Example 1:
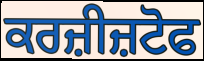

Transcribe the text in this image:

ਕਰਜ਼ੀਜ਼ਟੋਫ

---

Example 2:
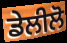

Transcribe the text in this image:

ਡੇਲੀਲੋ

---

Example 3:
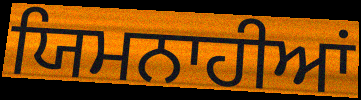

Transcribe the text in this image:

ਯਿਮਨਾਹੀਆਂ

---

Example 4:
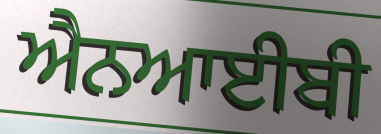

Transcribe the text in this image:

ਐਨਆਈਬੀ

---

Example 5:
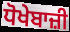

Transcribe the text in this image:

ਧੋਖੇਬਾਜ਼ੀ